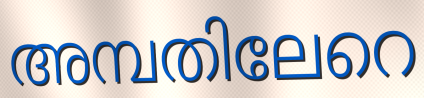
അമ്പതിലേറെ